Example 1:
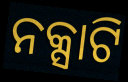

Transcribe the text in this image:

ନକ୍ସାଟି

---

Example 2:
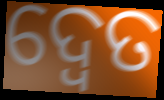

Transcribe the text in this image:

ଦ୍ବେତ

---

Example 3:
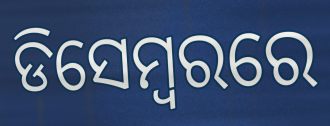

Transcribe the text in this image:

ଡିସେମ୍ବରରେ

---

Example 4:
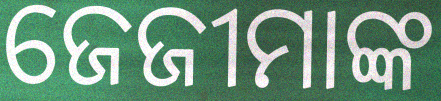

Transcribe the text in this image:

ଜେଜୀମାଙ୍କ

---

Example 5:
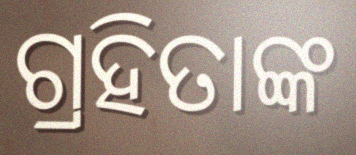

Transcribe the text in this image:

ଗ୍ରହିତାଙ୍କ